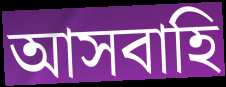
আসবাহি